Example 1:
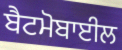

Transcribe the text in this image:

ਬੈਟਮੋਬਾਈਲ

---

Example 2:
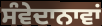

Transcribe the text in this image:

ਸੰਵੇਦਾਨਾਵਾਂ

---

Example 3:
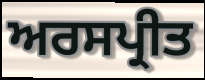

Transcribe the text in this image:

ਅਰਸਪ੍ਰੀਤ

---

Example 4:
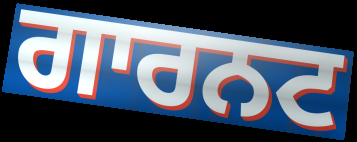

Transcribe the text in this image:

ਗਾਰਨਟ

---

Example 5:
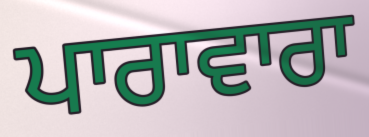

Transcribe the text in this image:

ਪਾਰਾਵਾਰਾ